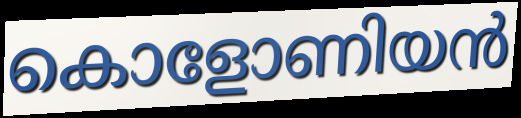
കൊളോണിയൻ